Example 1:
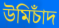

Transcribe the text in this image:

উমিচাঁদ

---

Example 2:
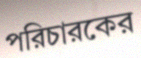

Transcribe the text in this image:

পরিচারকের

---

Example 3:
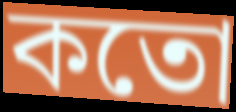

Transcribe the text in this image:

কতো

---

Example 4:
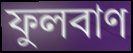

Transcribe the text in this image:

ফুলবাণ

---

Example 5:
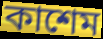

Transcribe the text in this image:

কাশেম